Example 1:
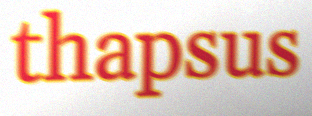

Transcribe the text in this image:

thapsus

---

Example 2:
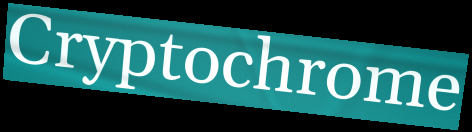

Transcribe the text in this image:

Cryptochrome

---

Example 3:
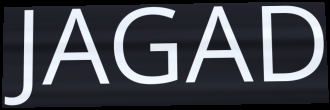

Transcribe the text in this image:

JAGAD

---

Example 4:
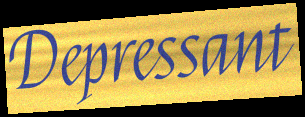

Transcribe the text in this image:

Depressant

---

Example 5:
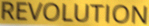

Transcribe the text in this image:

REVOLUTION